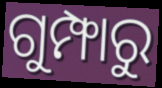
ଗୁମ୍ଫାରୁ